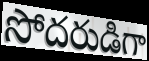
సోదరుడిగా